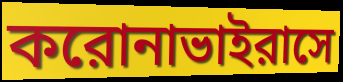
করোনাভাইরাসে